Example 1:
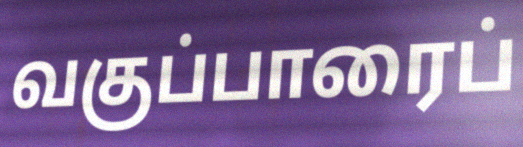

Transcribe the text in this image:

வகுப்பாரைப்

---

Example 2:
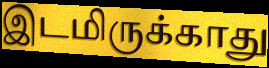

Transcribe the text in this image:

இடமிருக்காது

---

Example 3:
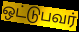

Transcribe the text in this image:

ஒட்டுபவர்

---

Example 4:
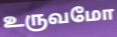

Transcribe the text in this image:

உருவமோ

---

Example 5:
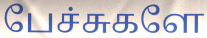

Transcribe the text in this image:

பேச்சுகளே